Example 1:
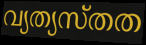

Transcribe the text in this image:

വ്യത്യസ്തത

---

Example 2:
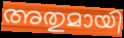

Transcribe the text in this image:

അതുമായി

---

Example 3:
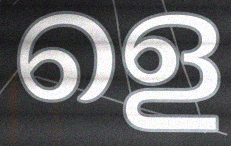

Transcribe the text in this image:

ളെ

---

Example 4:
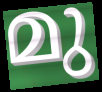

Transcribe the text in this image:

മു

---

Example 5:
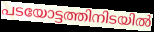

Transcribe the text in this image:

പടയോട്ടത്തിനിടയിൽ